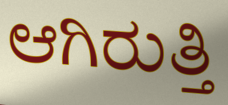
ಆಗಿರುತ್ತಿ